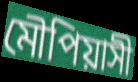
মৌপিয়াসী